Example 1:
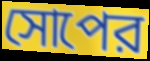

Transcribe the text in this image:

সোপের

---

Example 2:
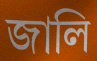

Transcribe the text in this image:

জালি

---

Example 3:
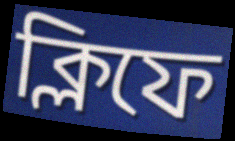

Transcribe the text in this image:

ক্লিফে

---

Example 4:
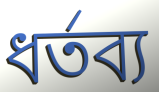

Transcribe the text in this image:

ধর্তব্য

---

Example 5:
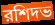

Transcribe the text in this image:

রশিদভ